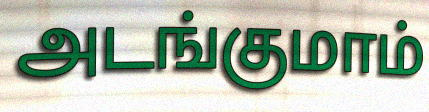
அடங்குமாம்